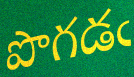
పొగడఁ